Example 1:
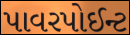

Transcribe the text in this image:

પાવરપોઈન્ટ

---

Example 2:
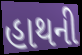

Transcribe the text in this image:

હાથની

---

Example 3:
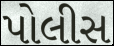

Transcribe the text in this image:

પોલીસ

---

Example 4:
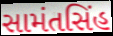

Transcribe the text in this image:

સામંતસિંહ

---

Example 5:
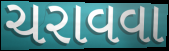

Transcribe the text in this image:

ચરાવવા